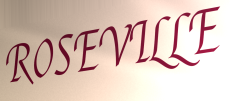
ROSEVILLE